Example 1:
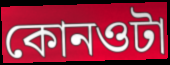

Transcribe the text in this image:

কোনওটা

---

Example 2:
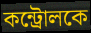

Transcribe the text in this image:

কন্ট্রোলকে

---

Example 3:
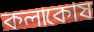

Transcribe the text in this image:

কলাকোষ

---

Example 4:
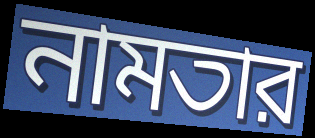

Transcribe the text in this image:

নামতার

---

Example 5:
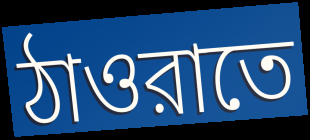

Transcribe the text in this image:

ঠাওরাতে